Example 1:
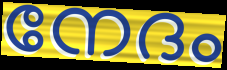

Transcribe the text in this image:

നേദം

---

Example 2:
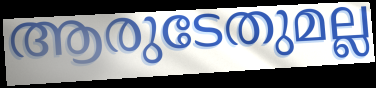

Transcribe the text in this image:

ആരുടേതുമല്ല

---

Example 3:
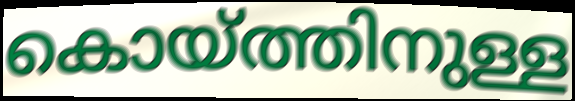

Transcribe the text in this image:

കൊയ്ത്തിനുള്ള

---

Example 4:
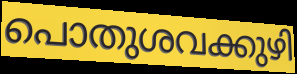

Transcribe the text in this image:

പൊതുശവക്കുഴി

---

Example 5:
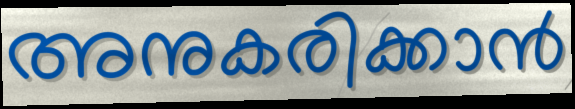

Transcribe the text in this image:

അനുകരിക്കാൻ